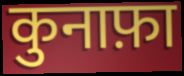
कुनाफ़ा